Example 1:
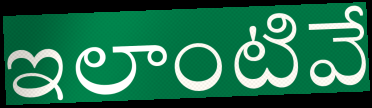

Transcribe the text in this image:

ఇలాంటివే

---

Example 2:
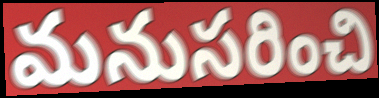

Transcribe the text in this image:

మనుసరించి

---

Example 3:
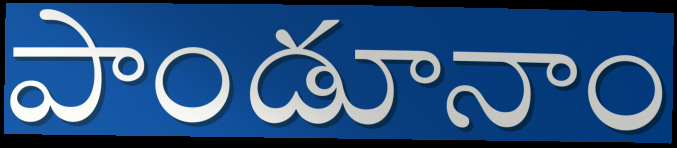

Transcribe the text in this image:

పాండూనాం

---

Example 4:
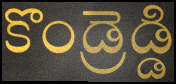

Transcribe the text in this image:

కొండ్రెడ్డి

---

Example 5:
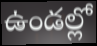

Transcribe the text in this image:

ఉండల్లో